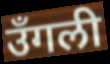
उँगली